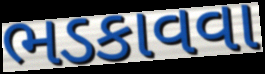
ભડકાવવા